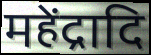
महेंद्रादि